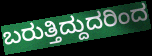
ಬರುತ್ತಿದ್ದುದರಿಂದ